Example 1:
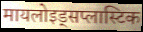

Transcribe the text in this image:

मायलोइड्सप्लास्टिक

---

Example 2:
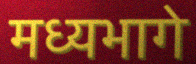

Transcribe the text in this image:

मध्यभागे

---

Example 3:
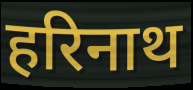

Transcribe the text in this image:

हरिनाथ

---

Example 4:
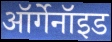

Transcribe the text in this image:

ऑर्गेनॉइड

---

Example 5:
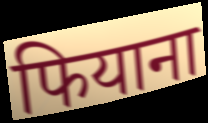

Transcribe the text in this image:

फियाना